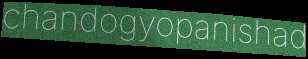
chandogyopanishad